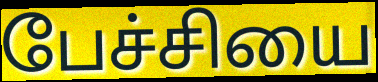
பேச்சியை